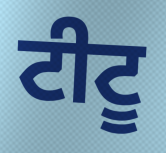
ਟੀਟੂ